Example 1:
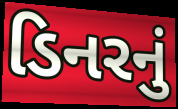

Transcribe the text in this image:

ડિનરનું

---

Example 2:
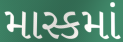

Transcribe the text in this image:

માસ્કમાં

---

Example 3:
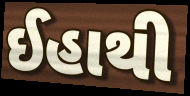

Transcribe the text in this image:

ઈહાથી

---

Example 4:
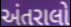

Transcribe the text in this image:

અંતરાલો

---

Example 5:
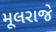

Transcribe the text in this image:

મૂલરાજે